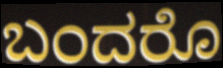
ಬಂದರೊ